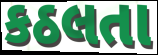
કઠલતા